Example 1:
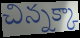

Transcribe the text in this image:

చిన్నక్కా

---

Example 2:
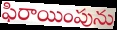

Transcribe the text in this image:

ఫిరాయింపును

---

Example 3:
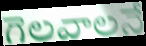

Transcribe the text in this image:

గెలవాలనే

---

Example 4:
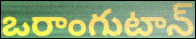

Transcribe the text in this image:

ఒరాంగుటాన్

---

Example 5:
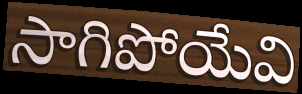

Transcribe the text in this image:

సాగిపోయేవి